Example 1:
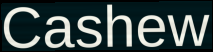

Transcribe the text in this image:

Cashew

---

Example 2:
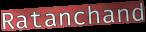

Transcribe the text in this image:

Ratanchand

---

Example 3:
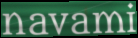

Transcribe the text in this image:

navami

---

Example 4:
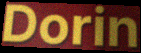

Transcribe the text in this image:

Dorin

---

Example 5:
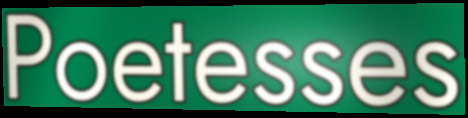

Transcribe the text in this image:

Poetesses